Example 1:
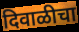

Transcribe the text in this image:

दिवाळीचा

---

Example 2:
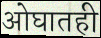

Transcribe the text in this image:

ओघातही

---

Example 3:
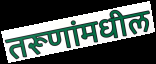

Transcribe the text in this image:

तरूणांमधील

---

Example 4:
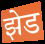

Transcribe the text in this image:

झेड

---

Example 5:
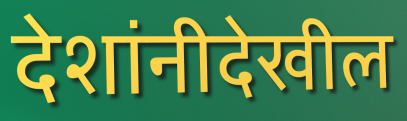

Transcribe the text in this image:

देशांनीदेखील